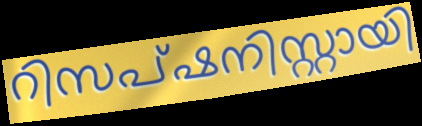
റിസപ്ഷനിസ്റ്റായി